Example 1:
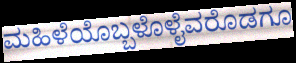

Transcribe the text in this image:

ಮಹಿಳೆಯೊಬ್ಬಳೊಳೈವರೊಡಗೂ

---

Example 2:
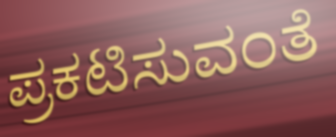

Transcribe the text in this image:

ಪ್ರಕಟಿಸುವಂತೆ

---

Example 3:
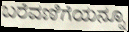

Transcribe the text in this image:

ಬರೆವಣಿಗೆಯನ್ನೂ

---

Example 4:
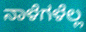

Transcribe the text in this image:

ನಾಳೆಗಳೆಲ್ಲ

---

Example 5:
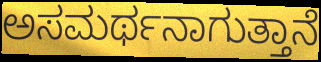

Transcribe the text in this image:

ಅಸಮರ್ಥನಾಗುತ್ತಾನೆ